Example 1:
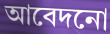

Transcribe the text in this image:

আবেদনো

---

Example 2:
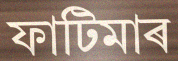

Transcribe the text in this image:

ফাটিমাৰ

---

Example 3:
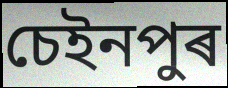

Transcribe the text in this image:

চেইনপুৰ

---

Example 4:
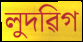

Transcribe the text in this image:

লুদৱিগ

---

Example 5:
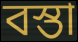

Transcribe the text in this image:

বস্তা